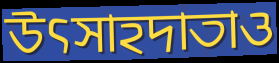
উৎসাহদাতাও